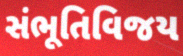
સંભૂતિવિજય